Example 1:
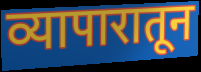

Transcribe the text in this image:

व्यापारातून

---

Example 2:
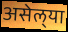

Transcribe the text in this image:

असेल्या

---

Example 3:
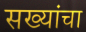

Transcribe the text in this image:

सख्यांचा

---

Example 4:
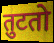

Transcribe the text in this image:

तुटतो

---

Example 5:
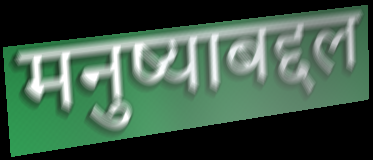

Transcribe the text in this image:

मनुष्याबद्दल